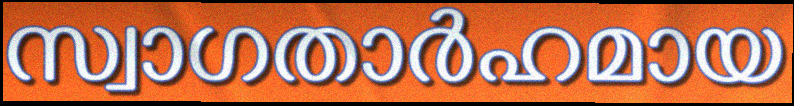
സ്വാഗതാർഹമായ